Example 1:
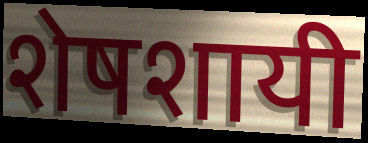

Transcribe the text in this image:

शेषशायी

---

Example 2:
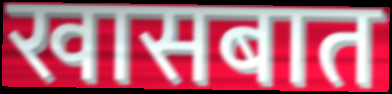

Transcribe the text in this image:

खासबात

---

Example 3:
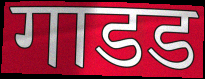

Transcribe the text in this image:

गाडड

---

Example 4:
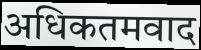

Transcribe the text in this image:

अधिकतमवाद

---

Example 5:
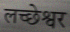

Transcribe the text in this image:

लच्छेश्वर